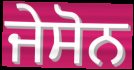
ਜੇਸੋਨ